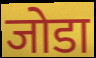
जोडा